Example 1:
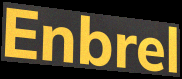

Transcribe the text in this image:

Enbrel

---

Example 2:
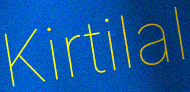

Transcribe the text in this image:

Kirtilal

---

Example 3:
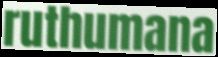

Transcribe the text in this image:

ruthumana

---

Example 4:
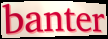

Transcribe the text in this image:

banter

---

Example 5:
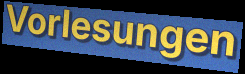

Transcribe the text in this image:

Vorlesungen